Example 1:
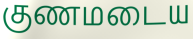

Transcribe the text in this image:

குணமடைய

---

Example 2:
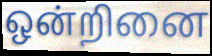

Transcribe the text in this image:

ஒன்றினை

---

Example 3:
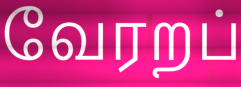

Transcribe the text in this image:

வேரறப்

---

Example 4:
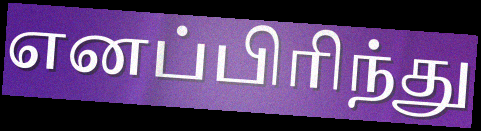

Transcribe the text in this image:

எனப்பிரிந்து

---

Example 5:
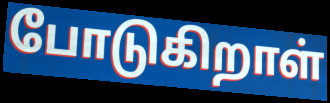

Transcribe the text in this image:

போடுகிறாள்